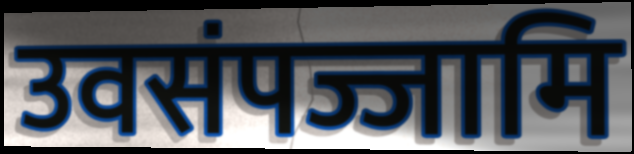
उवसंपज्जामि